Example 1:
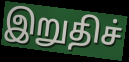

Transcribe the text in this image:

இறுதிச்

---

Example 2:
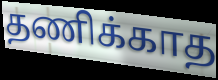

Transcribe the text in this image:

தணிக்காத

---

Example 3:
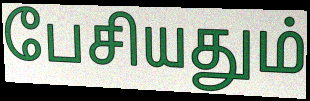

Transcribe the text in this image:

பேசியதும்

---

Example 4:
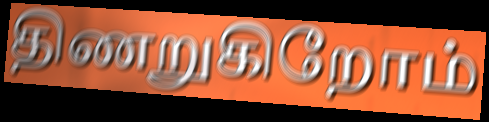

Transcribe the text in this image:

திணறுகிறோம்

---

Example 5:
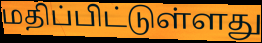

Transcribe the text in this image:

மதிப்பிட்டுள்ளது